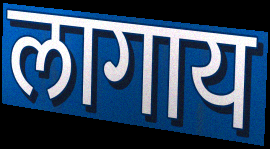
लागाय